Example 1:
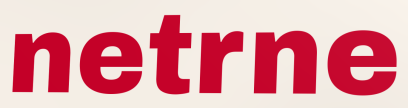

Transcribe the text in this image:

netrne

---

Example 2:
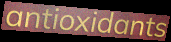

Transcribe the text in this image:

antioxidants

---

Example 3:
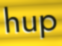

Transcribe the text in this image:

hup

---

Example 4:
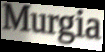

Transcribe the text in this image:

Murgia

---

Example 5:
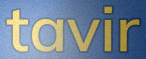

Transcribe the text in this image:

tavir